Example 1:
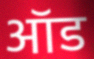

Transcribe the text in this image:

ऑड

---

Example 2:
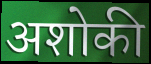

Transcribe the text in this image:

अशोकी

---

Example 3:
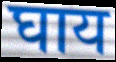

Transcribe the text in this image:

घाय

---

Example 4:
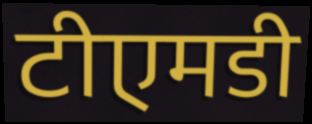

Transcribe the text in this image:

टीएमडी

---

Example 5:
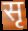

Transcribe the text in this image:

सृ